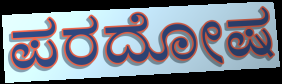
ಪರದೋಷ